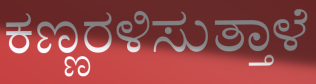
ಕಣ್ಣರಳಿಸುತ್ತಾಳೆ